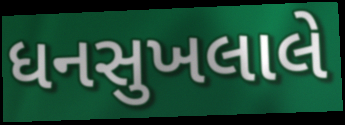
ધનસુખલાલે